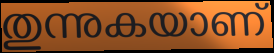
തുന്നുകയാണ്